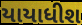
યાયાધીશ